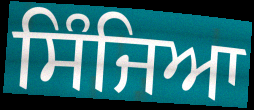
ਸਿੰਜਿਆ